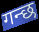
गन्छ